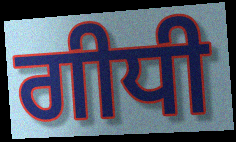
ਗੀਧੀ